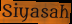
Siyasah